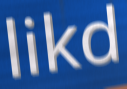
likd